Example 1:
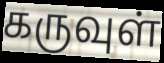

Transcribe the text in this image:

கருவுள்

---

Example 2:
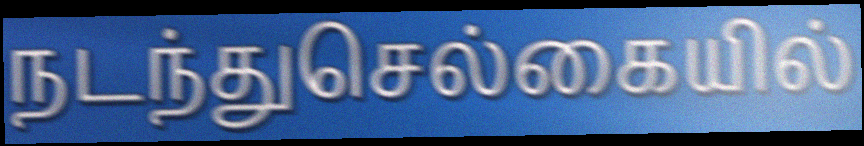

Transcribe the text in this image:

நடந்துசெல்கையில்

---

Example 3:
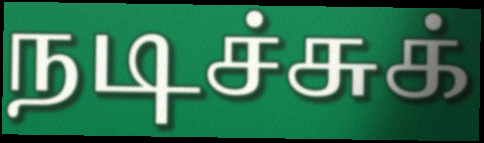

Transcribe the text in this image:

நடிச்சுக்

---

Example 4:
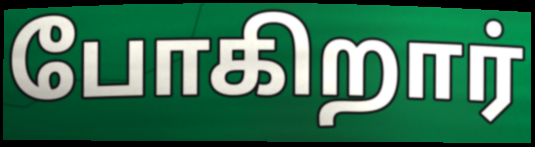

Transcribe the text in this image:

போகிறார்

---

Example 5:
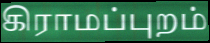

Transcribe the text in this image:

கிராமப்புறம்